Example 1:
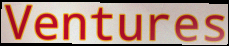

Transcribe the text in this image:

Ventures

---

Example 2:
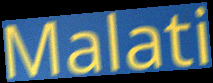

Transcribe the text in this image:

Malati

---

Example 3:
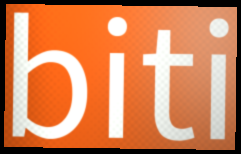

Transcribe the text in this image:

biti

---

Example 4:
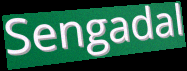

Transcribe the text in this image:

Sengadal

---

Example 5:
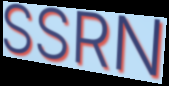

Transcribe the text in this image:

SSRN